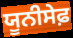
ਯੂਨੀਸੇਫ਼